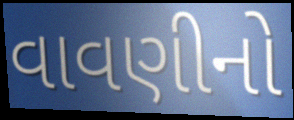
વાવણીનો